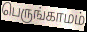
பெருங்காமம்